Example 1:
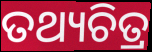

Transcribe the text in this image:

ତଥ୍ୟଚିତ୍ର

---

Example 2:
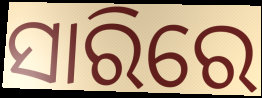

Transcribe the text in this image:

ସାରିରେ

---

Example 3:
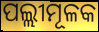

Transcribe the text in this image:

ପଲ୍ଲୀମୂଳକ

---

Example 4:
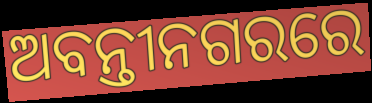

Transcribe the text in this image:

ଅବନ୍ତୀନଗରରେ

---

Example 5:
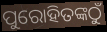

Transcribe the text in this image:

ପୁରୋହିତଙ୍କଠୁଁ